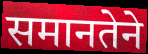
समानतेने